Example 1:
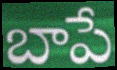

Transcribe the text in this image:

బాపే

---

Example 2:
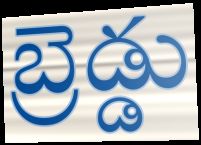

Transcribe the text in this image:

బ్రెడ్డు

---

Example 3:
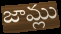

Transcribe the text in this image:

జామ్లు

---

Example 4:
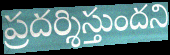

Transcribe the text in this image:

ప్రదర్శిస్తుందని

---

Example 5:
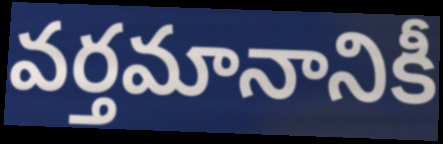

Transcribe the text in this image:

వర్తమానానికీ